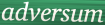
adversum